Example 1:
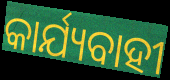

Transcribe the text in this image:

କାର୍ଯ୍ୟବାହୀ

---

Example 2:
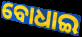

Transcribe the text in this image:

ବୋଧାଇ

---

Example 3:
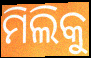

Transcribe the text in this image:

ମିଲିକୁ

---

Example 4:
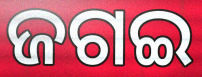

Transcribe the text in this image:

ଜଗଇ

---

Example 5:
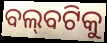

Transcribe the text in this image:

ବଲ୍‌ବଟିକୁ